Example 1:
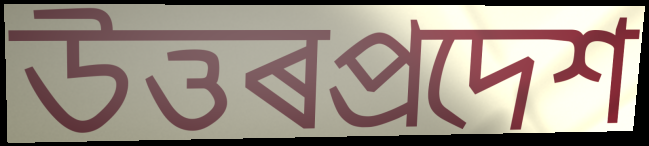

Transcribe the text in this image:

উত্তৰপ্ৰদেশ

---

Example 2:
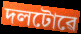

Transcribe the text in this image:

দলটোৱে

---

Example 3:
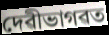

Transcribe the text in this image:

দেৱীভাগৱত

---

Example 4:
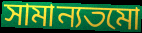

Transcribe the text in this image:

সামান্যতমো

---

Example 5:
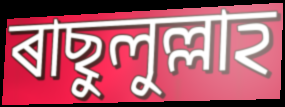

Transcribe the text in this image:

ৰাছুলুল্লাহ